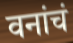
वनांचं